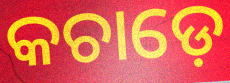
କଚାଡ଼େ